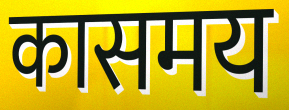
कासमय